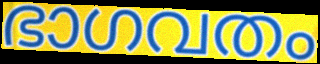
ഭാഗവതം